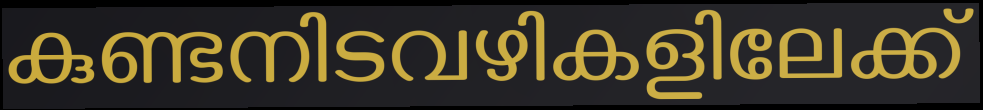
കുണ്ടനിടവഴികളിലേക്ക്